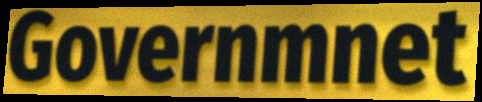
Governmnet